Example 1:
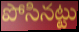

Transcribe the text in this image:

పోసినట్టు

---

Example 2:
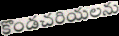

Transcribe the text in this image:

కొండచరియలను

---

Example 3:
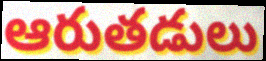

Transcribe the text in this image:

ఆరుతడులు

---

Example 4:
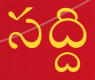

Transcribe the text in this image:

సద్ది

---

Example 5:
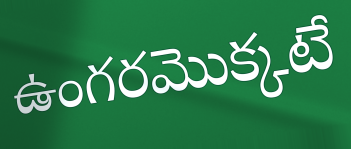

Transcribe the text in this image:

ఉంగరమొక్కటే